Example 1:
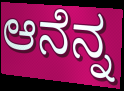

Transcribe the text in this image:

ಆನೆನ್ನ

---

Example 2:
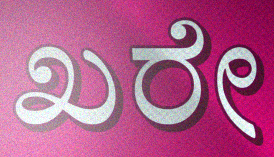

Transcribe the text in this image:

ಖರೇ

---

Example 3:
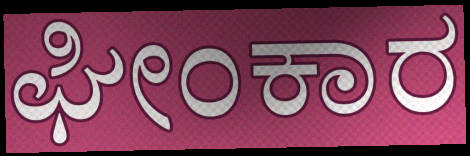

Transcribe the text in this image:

ಘೀಂಕಾರ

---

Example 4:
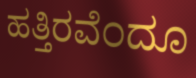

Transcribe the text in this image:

ಹತ್ತಿರವೆಂದೂ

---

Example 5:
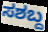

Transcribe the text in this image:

ಸಶಬ್ದ